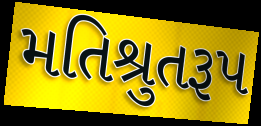
મતિશ્રુતરૂપ